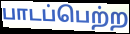
பாடப்பெற்ற